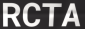
RCTA